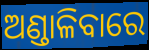
ଅଣ୍ଡାଳିବାରେ